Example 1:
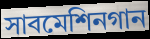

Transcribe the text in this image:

সাবমেশিনগান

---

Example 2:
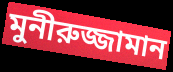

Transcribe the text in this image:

মুনীরুজ্জামান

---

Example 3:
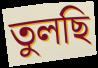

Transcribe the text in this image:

তুলছি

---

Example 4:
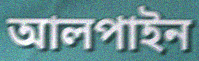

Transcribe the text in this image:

আলপাইন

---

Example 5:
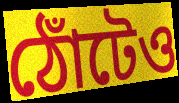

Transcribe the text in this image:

ঠোঁটেও